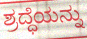
ಶ್ರದ್ಧೆಯನ್ನು